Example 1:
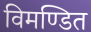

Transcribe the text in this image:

विमण्डित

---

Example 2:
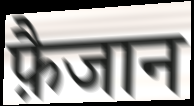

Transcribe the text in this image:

फ़ैजान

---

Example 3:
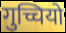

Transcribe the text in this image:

गुच्चियो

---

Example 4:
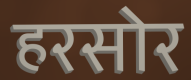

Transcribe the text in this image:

हरसोर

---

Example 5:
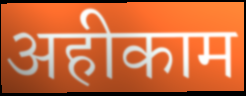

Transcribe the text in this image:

अहीकाम